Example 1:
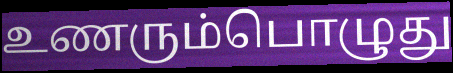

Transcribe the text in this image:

உணரும்பொழுது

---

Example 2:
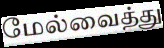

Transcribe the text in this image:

மேல்வைத்து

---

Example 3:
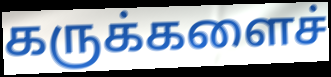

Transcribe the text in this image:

கருக்களைச்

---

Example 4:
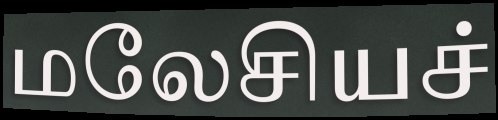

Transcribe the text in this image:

மலேசியச்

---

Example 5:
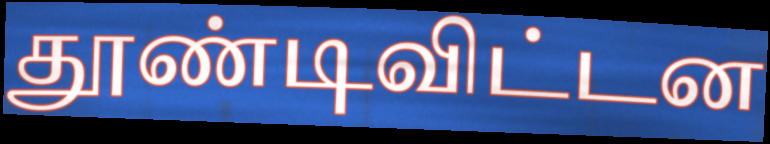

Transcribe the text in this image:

தூண்டிவிட்டன